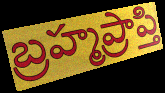
బ్రహ్మప్రాప్తి